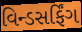
વિન્ડસર્ફિંગ